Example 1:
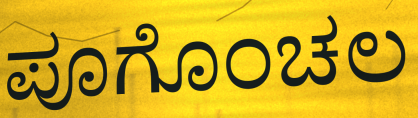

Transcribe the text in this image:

ಪೂಗೊಂಚಲ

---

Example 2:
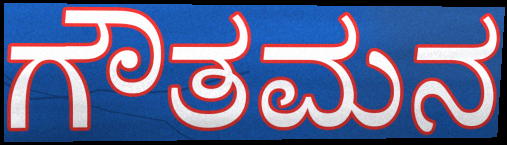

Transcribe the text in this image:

ಗೌತಮನ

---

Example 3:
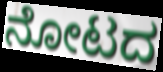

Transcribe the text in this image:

ನೋಟದ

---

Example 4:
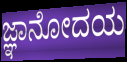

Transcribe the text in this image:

ಜ್ಞಾನೋದಯ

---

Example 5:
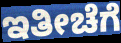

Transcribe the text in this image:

ಇತೀಚೆಗೆ